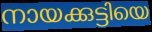
നായക്കുട്ടിയെ